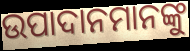
ଉପାଦାନମାନଙ୍କୁ